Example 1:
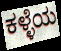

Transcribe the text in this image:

ಕಳ್ಳೆಯ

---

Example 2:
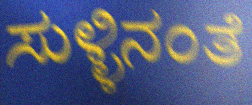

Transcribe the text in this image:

ಸುಳ್ಳಿನಂತೆ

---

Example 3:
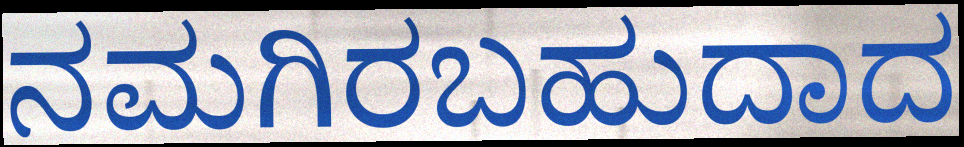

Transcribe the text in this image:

ನಮಗಿರಬಹುದಾದ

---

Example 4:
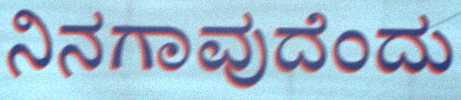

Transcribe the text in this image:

ನಿನಗಾವುದೆಂದು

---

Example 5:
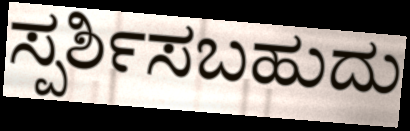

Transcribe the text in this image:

ಸ್ಪರ್ಶಿಸಬಹುದು